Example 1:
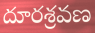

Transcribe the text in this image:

దూరశ్రవణ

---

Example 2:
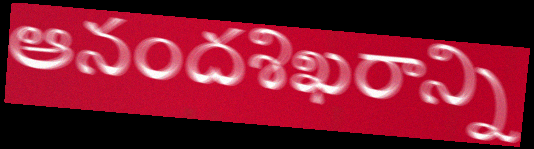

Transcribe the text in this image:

ఆనందశిఖరాన్ని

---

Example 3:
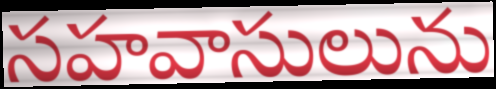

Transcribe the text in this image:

సహవాసులును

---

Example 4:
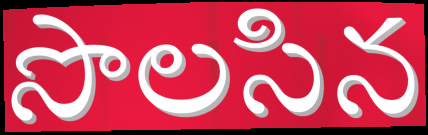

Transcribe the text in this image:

సొలసిన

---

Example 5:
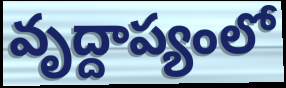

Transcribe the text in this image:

వృద్దాప్యంలో